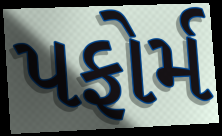
પફોર્મ